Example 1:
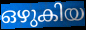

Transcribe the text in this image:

ഒഴുകിയ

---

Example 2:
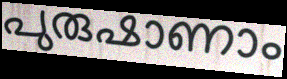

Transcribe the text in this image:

പുരുഷാണാം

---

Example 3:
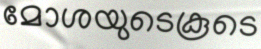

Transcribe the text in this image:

മോശയുടെകൂടെ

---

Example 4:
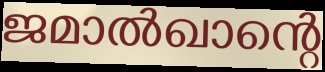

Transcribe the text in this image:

ജമാൽഖാന്റെ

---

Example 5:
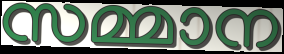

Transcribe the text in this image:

സമ്മാന